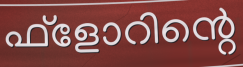
ഫ്ളോറിന്റെ